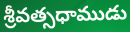
శ్రీవత్సధాముడు